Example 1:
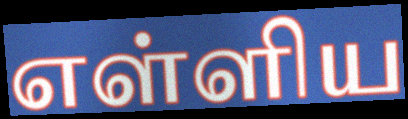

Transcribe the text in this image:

எள்ளிய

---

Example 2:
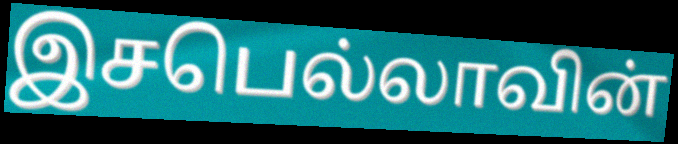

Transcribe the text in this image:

இசபெல்லாவின்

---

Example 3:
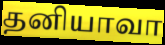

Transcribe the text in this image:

தனியாவா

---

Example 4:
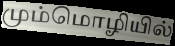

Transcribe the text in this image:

மும்மொழியில்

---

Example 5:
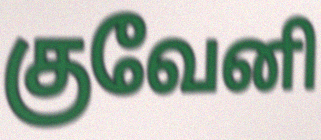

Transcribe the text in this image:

குவேனி